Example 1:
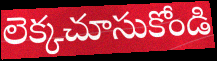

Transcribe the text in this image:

లెక్కచూసుకోండి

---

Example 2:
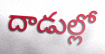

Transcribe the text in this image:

దాడుల్లో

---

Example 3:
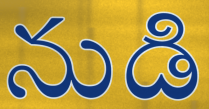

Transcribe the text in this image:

నుడి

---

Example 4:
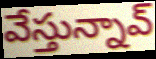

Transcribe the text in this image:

వేస్తున్నావ్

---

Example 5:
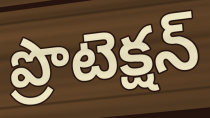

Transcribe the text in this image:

ప్రొటెక్షన్